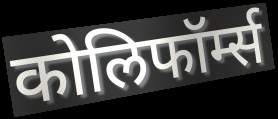
कोलिफॉर्म्स